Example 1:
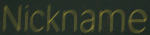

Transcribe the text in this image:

Nickname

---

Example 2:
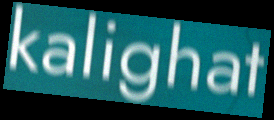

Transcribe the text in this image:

kalighat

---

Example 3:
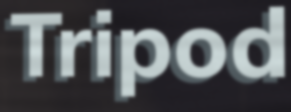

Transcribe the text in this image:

Tripod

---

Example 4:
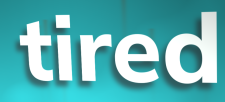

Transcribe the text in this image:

tired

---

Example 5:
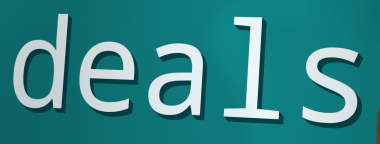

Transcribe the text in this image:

deals